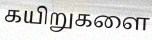
கயிறுகளை